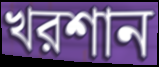
খরশান